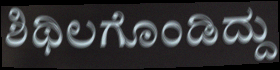
ಶಿಥಿಲಗೊಂಡಿದ್ದು